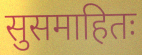
सुसमाहितः